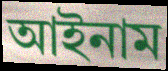
আইনাম